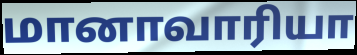
மானாவாரியா